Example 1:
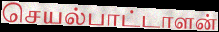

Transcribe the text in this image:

செயல்பாட்டாளன்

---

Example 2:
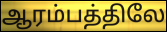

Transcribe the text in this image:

ஆரம்பத்திலே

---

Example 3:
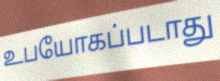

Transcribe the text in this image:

உபயோகப்படாது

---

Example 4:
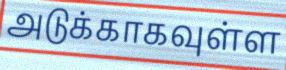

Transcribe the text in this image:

அடுக்காகவுள்ள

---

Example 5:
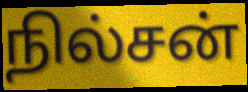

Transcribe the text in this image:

நில்சன்